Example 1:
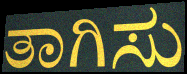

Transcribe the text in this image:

ತಾಗಿಸು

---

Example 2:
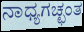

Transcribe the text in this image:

ನಾಧ್ಯಗಚ್ಛಂತ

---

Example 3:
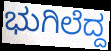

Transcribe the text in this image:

ಭುಗಿಲೆದ್ದ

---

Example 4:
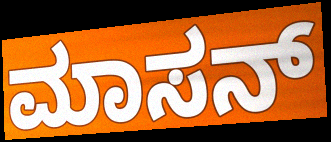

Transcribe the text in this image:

ಮಾಸನ್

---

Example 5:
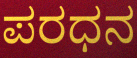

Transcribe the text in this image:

ಪರಧನ